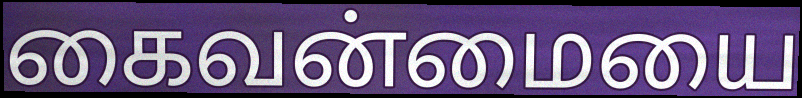
கைவன்மையை